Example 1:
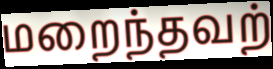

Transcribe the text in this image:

மறைந்தவற்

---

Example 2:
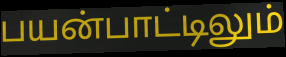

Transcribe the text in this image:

பயன்பாட்டிலும்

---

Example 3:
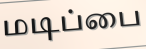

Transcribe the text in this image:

மடிப்பை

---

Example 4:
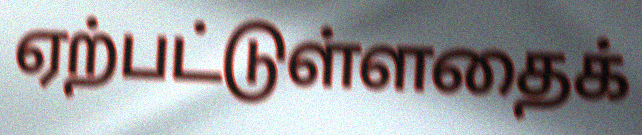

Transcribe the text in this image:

ஏற்பட்டுள்ளதைக்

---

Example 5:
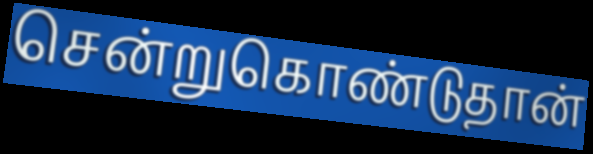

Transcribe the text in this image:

சென்றுகொண்டுதான்